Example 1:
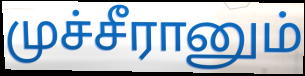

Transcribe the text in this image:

முச்சீரானும்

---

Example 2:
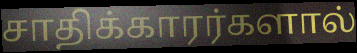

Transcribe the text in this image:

சாதிக்காரர்களால்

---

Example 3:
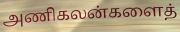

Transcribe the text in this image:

அணிகலன்களைத்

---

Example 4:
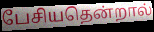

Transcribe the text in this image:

பேசியதென்றால்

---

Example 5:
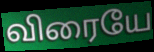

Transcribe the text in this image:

விரையே